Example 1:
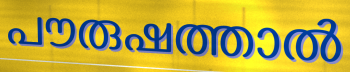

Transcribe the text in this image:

പൗരുഷത്താൽ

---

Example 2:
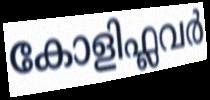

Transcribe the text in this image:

കോളിഫ്ലവർ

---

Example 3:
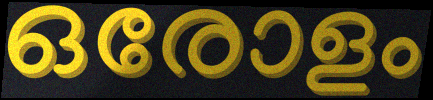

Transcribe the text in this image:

ഒരോളം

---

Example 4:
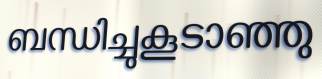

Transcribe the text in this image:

ബന്ധിച്ചുകൂടാഞ്ഞു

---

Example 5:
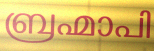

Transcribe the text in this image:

ബ്രഹ്മാപി